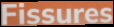
Fissures